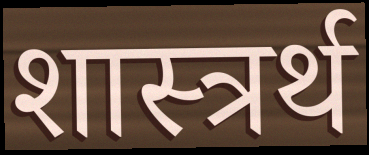
शास्त्रर्थ